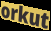
orkut